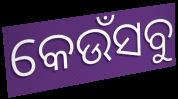
କେଉଁସବୁ